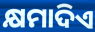
କ୍ଷମାଦିଏ